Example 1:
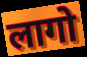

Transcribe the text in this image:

लागो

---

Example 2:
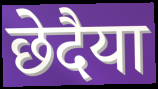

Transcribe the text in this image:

छेदैया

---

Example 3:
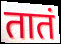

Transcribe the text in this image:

तातं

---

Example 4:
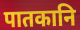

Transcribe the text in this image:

पातकानि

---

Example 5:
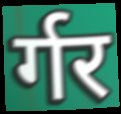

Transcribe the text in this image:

र्गर